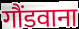
गौंडवाना